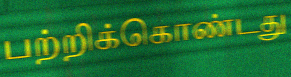
பற்றிக்கொண்டது